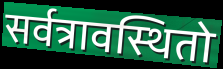
सर्वत्रावस्थितो